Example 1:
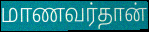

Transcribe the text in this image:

மாணவர்தான்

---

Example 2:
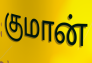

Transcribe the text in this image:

குமான்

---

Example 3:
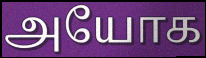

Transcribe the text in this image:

அயோக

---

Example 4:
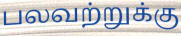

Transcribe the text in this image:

பலவற்றுக்கு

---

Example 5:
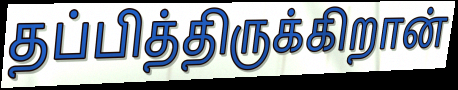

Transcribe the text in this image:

தப்பித்திருக்கிறான்